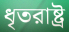
ধৃতরাষ্ট্র